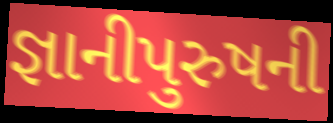
જ્ઞાનીપુરુષની